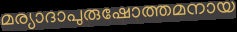
മര്യാദാപുരുഷോത്തമനായ